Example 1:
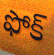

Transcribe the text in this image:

ఫోక్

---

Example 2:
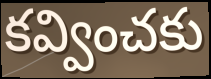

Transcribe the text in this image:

కవ్వించకు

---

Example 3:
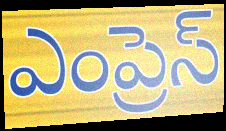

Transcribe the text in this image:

ఎంప్రెస్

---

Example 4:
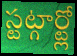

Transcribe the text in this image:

స్టట్గార్ట్లో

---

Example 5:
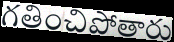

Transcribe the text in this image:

గతించిపోతారు